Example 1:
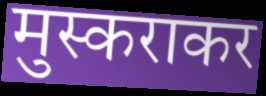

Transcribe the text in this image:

मुस्कराकर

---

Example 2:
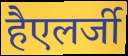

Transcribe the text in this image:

हैएलर्जी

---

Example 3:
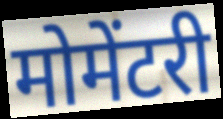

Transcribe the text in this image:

मोमेंटरी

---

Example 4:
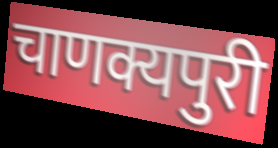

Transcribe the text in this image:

चाणक्यपुरी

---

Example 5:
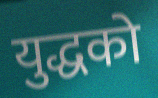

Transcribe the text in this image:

युद्धको